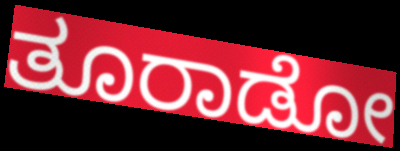
ತೂರಾಡೋ